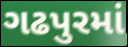
ગઢપુરમાં